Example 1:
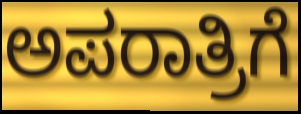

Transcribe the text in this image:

ಅಪರಾತ್ರಿಗೆ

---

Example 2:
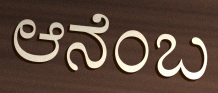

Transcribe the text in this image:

ಆನೆಂಬ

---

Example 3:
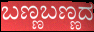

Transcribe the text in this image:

ಬಣ್ಣಬಣ್ಣದ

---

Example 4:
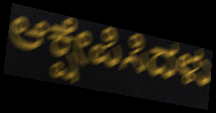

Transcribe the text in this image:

ಆಕ್ಷೇಪಿಸಿದಳು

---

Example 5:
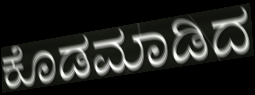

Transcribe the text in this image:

ಕೊಡಮಾಡಿದ